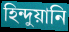
হিন্দুয়ানি